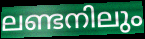
ലണ്ടനിലും